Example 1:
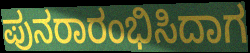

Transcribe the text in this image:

ಪುನರಾರಂಭಿಸಿದಾಗ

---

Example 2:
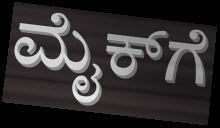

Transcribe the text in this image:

ಮೈಕ್‌ಗೆ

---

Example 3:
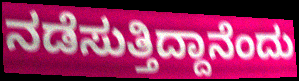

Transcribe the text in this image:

ನಡೆಸುತ್ತಿದ್ದಾನೆಂದು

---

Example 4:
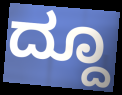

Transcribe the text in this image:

ದ್ದೂ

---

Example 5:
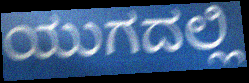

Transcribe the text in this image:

ಯುಗದಲ್ಲಿ